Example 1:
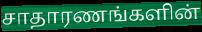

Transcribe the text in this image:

சாதாரணங்களின்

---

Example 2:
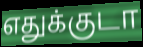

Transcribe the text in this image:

எதுக்குடா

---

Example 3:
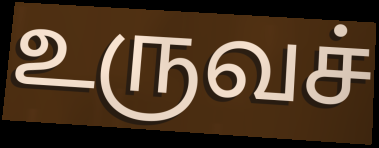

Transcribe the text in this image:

உருவச்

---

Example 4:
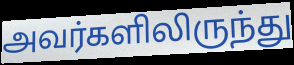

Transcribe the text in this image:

அவர்களிலிருந்து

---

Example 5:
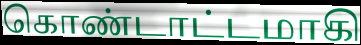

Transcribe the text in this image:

கொண்டாட்டமாகி